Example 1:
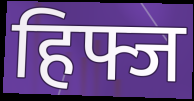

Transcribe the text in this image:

हिफ्ज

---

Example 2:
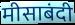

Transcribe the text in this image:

मीसाबंदी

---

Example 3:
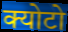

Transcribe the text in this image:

क्योटो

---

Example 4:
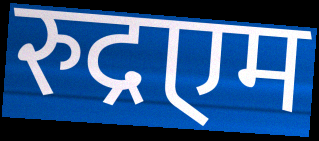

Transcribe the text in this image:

रुद्रएम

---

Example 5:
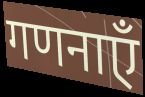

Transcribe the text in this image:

गणनाएँ